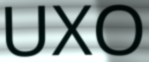
UXO